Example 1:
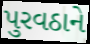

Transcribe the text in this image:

પુરવઠાને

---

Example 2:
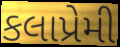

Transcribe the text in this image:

કલાપ્રેમી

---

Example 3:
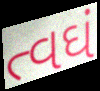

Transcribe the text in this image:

ત્વઘં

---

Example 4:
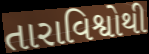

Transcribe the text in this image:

તારાવિશ્વોથી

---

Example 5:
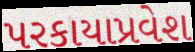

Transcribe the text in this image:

પરકાયાપ્રવેશ